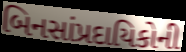
બિનસાંપ્રદાયિકોની